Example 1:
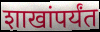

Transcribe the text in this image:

शाखांपर्यंत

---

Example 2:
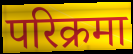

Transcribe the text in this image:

परिक्रमा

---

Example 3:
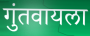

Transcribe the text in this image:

गुंतवायला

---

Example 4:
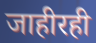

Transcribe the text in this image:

जाहीरही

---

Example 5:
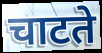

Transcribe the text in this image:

चाटते